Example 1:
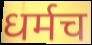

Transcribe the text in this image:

धर्मच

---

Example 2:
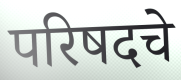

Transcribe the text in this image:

परिषदचे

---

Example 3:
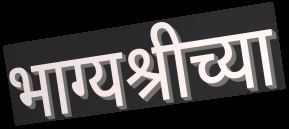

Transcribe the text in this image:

भाग्यश्रीच्या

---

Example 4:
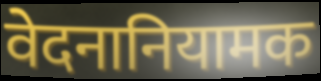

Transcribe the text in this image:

वेदनानियामक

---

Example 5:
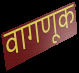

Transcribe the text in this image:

वागणूक